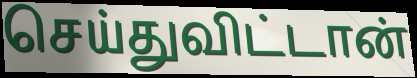
செய்துவிட்டான்